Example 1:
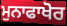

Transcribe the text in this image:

ਮੁਨਾਫਾਖੋਰ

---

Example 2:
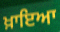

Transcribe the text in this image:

ਖ਼ਾਇਆ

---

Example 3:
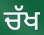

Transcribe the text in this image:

ਚੱਖ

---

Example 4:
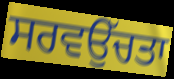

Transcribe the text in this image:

ਸਰਵਉੱਚਤਾ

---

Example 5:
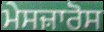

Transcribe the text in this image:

ਮੇਸਜ਼ਾਰੋਸ